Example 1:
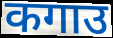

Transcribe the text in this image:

कगाउ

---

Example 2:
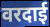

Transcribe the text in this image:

वरदाई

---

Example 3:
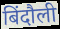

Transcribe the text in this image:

बिंदौली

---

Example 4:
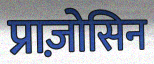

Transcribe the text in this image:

प्राज़ोसिन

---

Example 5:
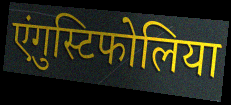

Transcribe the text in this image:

एंगुस्टिफोलिया